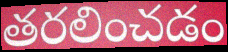
తరలించడం